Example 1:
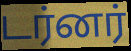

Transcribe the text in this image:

டர்னர்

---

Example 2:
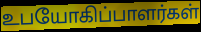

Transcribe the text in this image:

உபயோகிப்பாளர்கள்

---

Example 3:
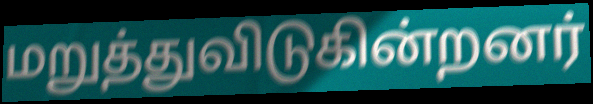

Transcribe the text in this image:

மறுத்துவிடுகின்றனர்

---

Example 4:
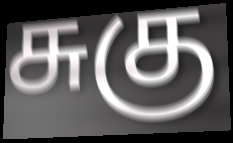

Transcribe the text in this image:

சுகு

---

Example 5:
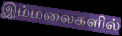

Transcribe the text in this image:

இம்மலைகளில்